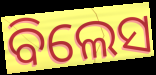
ବିଲେସ